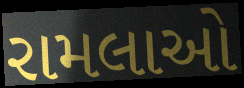
રામલાઓ